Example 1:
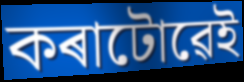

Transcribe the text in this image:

কৰাটোৱেই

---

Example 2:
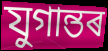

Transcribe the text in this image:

যুগান্তৰ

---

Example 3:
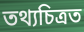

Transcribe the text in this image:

তথ্যচিত্ৰত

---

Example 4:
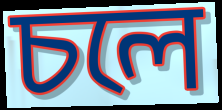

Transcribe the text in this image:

চলে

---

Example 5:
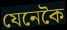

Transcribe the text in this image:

যেনেকৈ